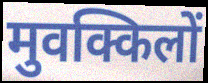
मुवक्किलों